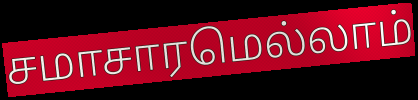
சமாசாரமெல்லாம்